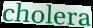
cholera